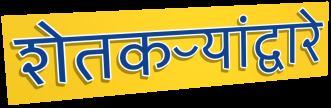
शेतकऱ्यांद्वारे